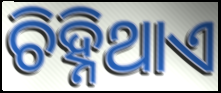
ଚିହ୍ନିଥାଏ